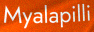
Myalapilli